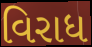
વિરાધ